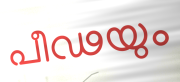
പീഢയും